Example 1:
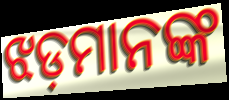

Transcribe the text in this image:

ଝଡ଼ମାନଙ୍କ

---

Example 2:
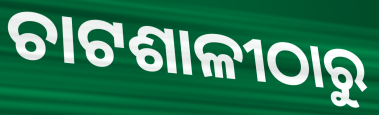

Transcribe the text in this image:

ଚାଟଶାଳୀଠାରୁ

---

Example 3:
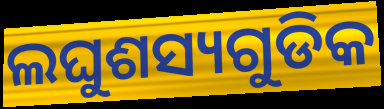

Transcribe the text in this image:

ଲଘୁଶସ୍ୟଗୁଡିକ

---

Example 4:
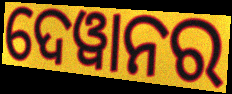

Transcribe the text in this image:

ଦେୱାନର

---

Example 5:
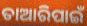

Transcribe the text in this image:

ତାଆରିପାଇଁ